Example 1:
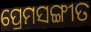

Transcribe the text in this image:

ପ୍ରେମସଙ୍ଗୀତ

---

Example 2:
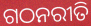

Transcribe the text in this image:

ଗଠନରୀତି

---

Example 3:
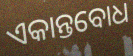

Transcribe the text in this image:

ଏକାନ୍ତବୋଧ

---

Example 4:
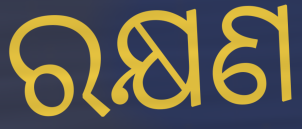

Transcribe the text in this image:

ରକ୍ଷଣ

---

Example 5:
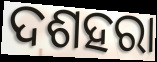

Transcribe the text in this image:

ଦଶହରା